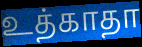
உத்காதா